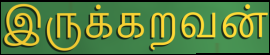
இருக்கறவன்